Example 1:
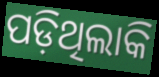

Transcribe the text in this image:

ପଡ଼ିଥିଲାକି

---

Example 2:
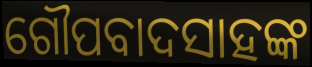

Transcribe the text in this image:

ଗୌପବାଦସାହଙ୍କ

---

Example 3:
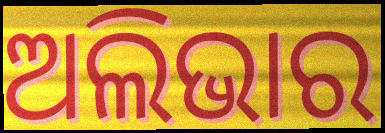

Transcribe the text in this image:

ଅଲିଭାର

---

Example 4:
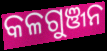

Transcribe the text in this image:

କଳଗୁଞ୍ଜନ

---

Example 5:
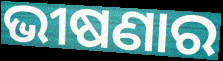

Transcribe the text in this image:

ଭୀଷଣାର